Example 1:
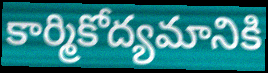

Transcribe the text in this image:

కార్మికోద్యమానికి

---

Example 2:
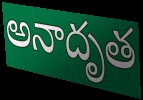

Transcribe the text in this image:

అనాదృత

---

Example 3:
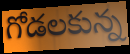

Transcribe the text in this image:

గోడలకున్న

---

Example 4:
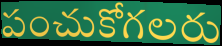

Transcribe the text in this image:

పంచుకోగలరు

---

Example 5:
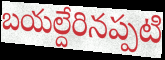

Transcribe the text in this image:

బయల్దేరినప్పటి